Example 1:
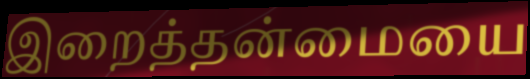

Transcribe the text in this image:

இறைத்தன்மையை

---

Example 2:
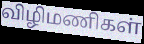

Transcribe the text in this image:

விழிமணிகள்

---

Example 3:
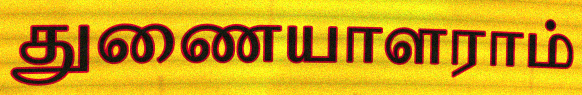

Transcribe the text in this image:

துணையாளராம்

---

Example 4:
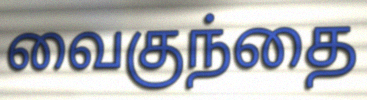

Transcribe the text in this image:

வைகுந்தை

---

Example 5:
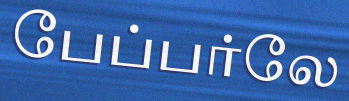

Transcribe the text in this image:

பேப்பர்லே